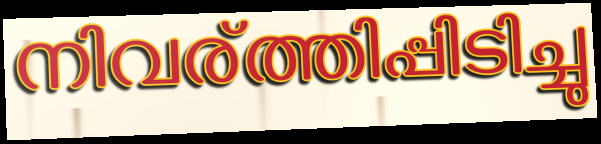
നിവര്ത്തിപ്പിടിച്ചു